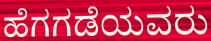
ಹೆಗಗಡೆಯವರು